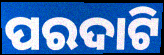
ପରଦାଟି